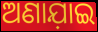
ଅଣାଯ଼ାଇ